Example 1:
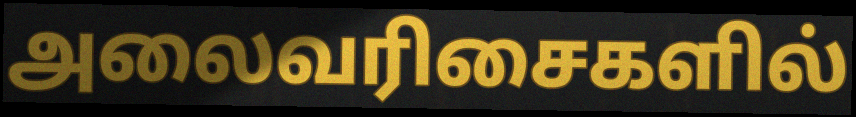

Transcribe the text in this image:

அலைவரிசைகளில்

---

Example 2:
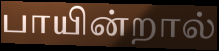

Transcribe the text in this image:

பாயின்றால்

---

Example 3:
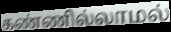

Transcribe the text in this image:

கண்ணில்லாமல்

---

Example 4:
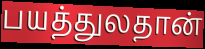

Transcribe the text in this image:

பயத்துலதான்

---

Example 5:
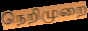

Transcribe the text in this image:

நெறிமுறை